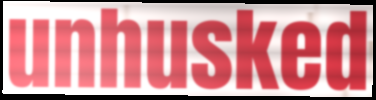
unhusked